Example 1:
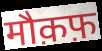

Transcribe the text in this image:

मौक़फ़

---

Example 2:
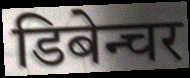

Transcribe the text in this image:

डिबेन्चर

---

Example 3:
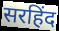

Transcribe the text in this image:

सरहिंद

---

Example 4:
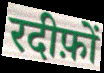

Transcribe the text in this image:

रदीफ़ों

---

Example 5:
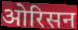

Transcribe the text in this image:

ओरिसन